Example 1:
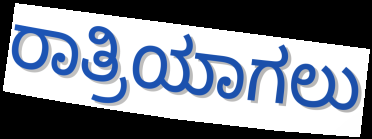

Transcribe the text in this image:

ರಾತ್ರಿಯಾಗಲು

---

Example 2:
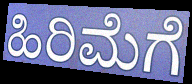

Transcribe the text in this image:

ಹಿರಿಮೆಗೆ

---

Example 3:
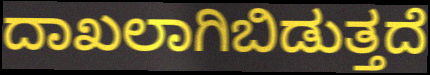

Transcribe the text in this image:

ದಾಖಲಾಗಿಬಿಡುತ್ತದೆ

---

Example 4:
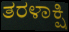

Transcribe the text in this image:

ತರಳಾಕ್ಷಿ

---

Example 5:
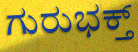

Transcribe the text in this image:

ಗುರುಭಕ್ತ್